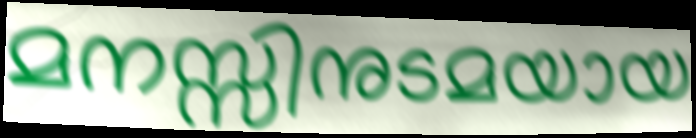
മനസ്സിനുടമയായ